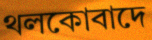
থলকোবাদে